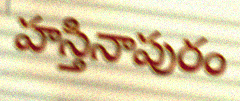
హస్తినాపురం